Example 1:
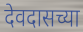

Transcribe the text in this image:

देवदासच्या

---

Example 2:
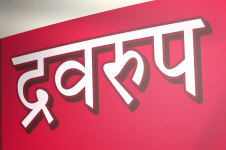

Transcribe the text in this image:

द्रवरुप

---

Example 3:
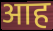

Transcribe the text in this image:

आह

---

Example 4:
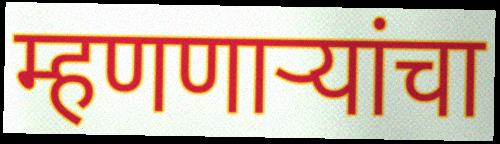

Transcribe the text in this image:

म्हणणाऱ्यांचा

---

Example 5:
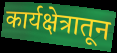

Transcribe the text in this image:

कार्यक्षेत्रातून